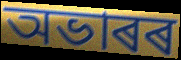
অভাৰৰ